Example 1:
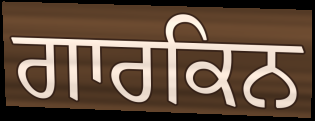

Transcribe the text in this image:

ਗਾਰਕਿਨ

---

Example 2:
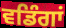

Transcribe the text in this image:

ਵਡਿੰਗਾਂ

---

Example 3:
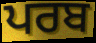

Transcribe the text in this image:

ਪਰਬ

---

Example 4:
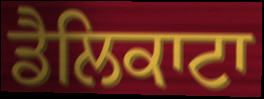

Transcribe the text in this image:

ਡੈਲਿਕਾਟਾ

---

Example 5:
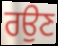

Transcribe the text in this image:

ਰਉਣ